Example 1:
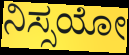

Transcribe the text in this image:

ನಿಸ್ಸಯೋ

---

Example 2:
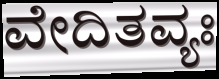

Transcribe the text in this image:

ವೇದಿತವ್ಯಃ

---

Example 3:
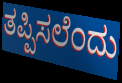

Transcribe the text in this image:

ತಪ್ಪಿಸಲೆಂದು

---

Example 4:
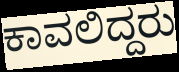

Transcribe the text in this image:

ಕಾವಲಿದ್ದರು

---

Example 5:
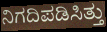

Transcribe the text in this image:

ನಿಗದಿಪಡಿಸಿತ್ತು